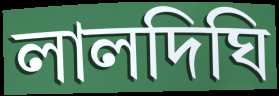
লালদিঘি